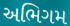
અભિગમ